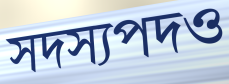
সদস্যপদও